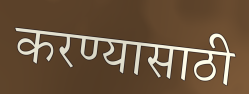
करण्यासाठी